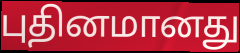
புதினமானது